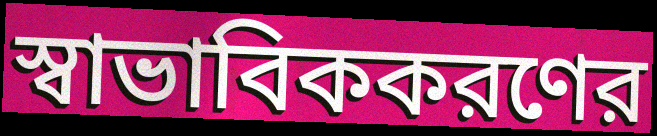
স্বাভাবিককরণের